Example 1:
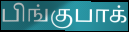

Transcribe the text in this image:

பிங்குபாக்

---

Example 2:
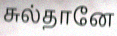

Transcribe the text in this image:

சுல்தானே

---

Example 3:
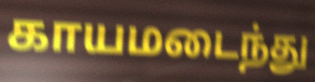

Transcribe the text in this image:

காயமடைந்து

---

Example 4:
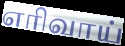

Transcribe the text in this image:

எரிவாய்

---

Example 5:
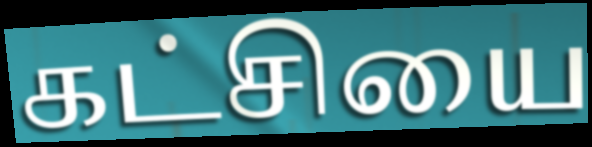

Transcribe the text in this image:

கட்சியை